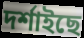
দৰ্শাইছে